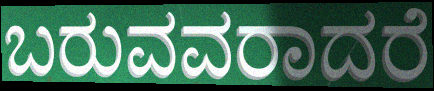
ಬರುವವರಾದರೆ